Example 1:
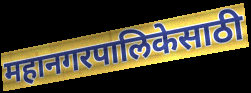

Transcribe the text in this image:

महानगरपालिकेसाठी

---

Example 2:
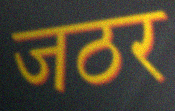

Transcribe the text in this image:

जठर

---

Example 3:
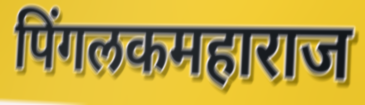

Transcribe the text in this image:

पिंगलकमहाराज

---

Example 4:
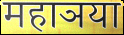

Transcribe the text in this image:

महाञया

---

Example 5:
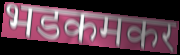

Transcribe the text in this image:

भडकमकर